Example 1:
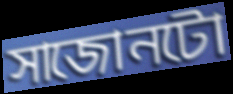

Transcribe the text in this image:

সাজোনটো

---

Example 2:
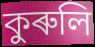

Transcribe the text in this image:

কুৰুলি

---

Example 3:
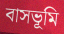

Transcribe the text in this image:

বাসভূমি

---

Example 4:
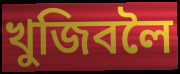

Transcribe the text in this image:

খুজিবলৈ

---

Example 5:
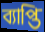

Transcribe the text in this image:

ব্যাপ্তি